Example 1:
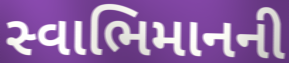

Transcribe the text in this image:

સ્વાભિમાનની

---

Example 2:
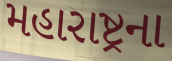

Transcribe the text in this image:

મહારાષ્ટ્રના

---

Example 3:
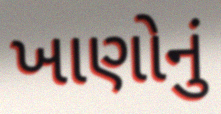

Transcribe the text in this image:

ખાણોનું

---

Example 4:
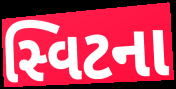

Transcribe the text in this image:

સ્વિટના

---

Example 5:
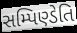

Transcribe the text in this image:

સમ્પિણ્ડેતિ